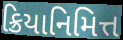
ક્રિયાનિમિત્ત